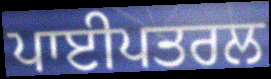
ਪਾਈਪਤਰਲ